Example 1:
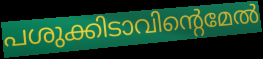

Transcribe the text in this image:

പശുക്കിടാവിന്റെമേൽ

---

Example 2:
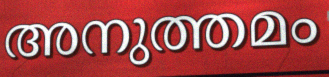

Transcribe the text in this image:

അനുത്തമം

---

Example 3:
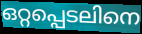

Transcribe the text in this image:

ഒറ്റപ്പെടലിനെ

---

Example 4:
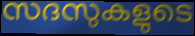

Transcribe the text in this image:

സദസുകളുടെ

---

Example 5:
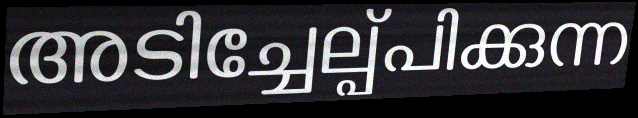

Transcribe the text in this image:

അടിച്ചേല്പ്പിക്കുന്ന